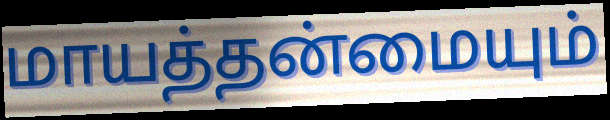
மாயத்தன்மையும்